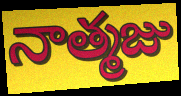
నాత్మజు